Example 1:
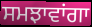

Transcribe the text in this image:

ਸਮਝਾਵਾਂਗਾ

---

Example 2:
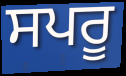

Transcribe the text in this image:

ਸਪਰੂ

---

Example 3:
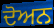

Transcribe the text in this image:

ਦੋਅਨ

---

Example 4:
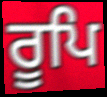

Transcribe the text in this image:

ਰੂਪਿ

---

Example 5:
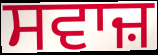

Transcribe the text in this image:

ਸਵਾਜ਼